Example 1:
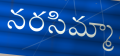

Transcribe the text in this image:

నరసిమ్మా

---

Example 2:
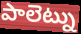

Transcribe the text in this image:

పాలెట్ను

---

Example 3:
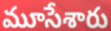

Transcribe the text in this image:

మూసేశారు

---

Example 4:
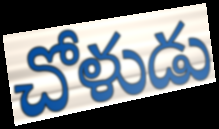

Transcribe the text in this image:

చోళుడు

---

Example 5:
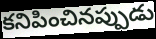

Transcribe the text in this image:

కనిపించినప్పుడు